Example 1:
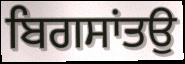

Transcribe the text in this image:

ਬਿਗਸਾਂਤਉ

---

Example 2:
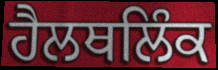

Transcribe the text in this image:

ਹੈਲਥਲਿੰਕ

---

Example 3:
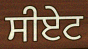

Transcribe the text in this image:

ਸੀਏਟ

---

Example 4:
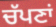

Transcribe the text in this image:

ਚੱਪਣਾਂ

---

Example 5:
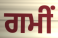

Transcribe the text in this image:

ਗਮੀਂ